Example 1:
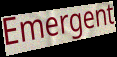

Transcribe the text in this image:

Emergent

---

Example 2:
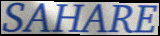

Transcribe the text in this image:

SAHARE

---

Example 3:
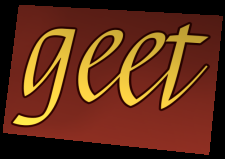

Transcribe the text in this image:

geet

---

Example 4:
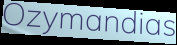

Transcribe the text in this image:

Ozymandias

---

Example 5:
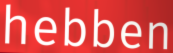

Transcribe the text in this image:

hebben